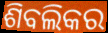
ଶିବଲିକର